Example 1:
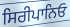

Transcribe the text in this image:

ਸਿਰੀਪਾਨਿਓ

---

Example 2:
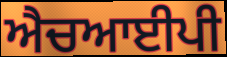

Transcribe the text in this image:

ਐਚਆਈਪੀ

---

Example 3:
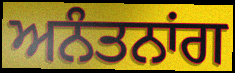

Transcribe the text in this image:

ਅਨੰਤਨਾਂਗ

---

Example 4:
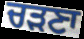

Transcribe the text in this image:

ਚੜਣਾ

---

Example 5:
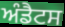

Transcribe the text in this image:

ਅੰਡੈਟਸ